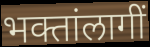
भक्तांलागीं